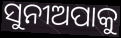
ସୁନୀଅପାକୁ